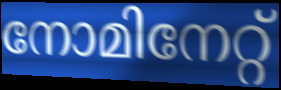
നോമിനേറ്റ്